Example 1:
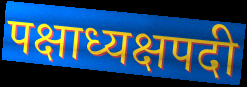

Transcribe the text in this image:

पक्षाध्यक्षपदी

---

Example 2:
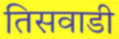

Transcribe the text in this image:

तिसवाडी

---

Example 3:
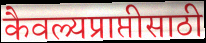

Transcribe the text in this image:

कैवल्यप्राप्तीसाठी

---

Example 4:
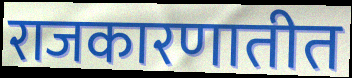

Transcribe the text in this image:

राजकारणातीत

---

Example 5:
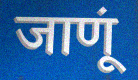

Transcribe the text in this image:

जाणूं